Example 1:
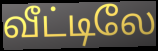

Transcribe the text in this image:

வீட்டிலே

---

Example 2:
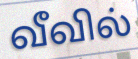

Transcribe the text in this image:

வீவில்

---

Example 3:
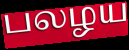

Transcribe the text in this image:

பலழய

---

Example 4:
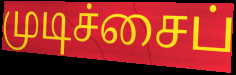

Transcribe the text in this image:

முடிச்சைப்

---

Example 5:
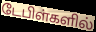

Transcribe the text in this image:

டேபிள்களில்